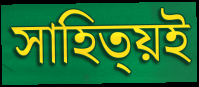
সাহিত্য়ই